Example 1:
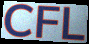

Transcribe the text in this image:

CFL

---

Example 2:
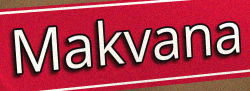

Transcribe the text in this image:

Makvana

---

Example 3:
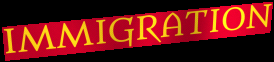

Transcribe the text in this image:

IMMIGRATION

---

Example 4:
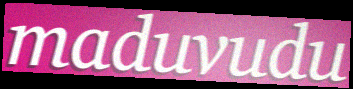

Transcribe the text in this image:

maduvudu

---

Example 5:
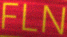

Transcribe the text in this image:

FLN